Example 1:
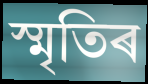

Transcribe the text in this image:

স্মৃতিৰ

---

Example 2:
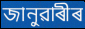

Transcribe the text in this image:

জানুৱাৰীৰ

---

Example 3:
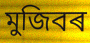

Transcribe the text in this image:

মুজিবৰ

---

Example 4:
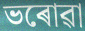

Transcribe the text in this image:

ভৰোৱা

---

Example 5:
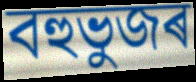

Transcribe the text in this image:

বহুভুজৰ